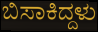
ಬಿಸಾಕಿದ್ದಳು